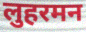
लुहरमन